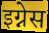
इग्नेस